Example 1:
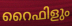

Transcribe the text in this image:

റൈഫിളും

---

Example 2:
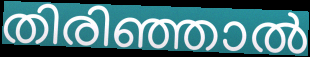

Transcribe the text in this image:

തിരിഞ്ഞാൽ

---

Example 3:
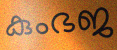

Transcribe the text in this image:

കുംഭജ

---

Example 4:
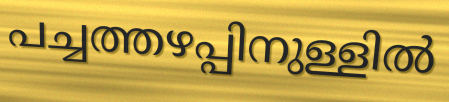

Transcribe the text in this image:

പച്ചത്തഴപ്പിനുള്ളിൽ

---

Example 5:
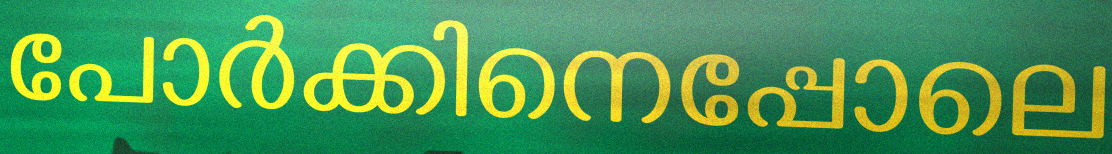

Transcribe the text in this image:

പോർക്കിനെപ്പോലെ